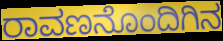
ರಾವಣನೊಂದಿಗಿನ